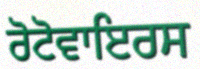
ਰੋਟੋਵਾਇਰਸ